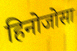
हिनोजोसा